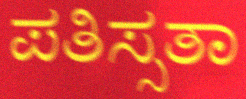
ಪತಿಸ್ಸತಾ